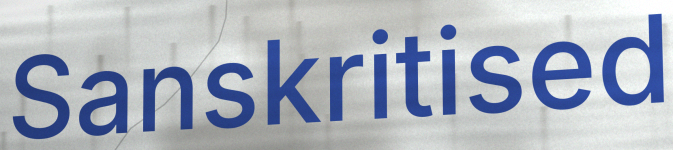
Sanskritised